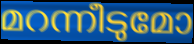
മറന്നീടുമോ